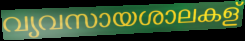
വ്യവസായശാലകള്